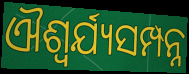
ଐଶ୍ୱର୍ଯ୍ୟସମ୍ପନ୍ନ